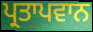
ਪ੍ਰਤਾਪਵਾਨ